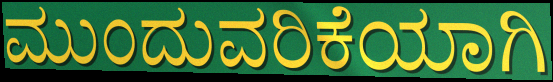
ಮುಂದುವರಿಕೆಯಾಗಿ